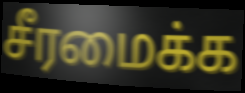
சீரமைக்க